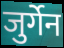
जुर्गेन